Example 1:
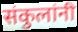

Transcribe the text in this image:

संकुलांनी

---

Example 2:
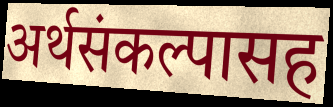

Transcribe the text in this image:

अर्थसंकल्पासह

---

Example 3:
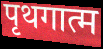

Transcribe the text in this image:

पृथगात्म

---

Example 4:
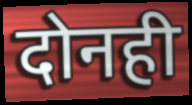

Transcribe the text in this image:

दोनही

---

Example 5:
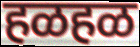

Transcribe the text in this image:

हळहळ